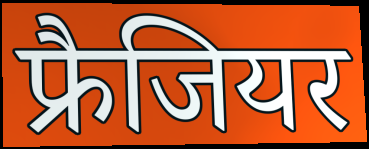
फ्रैजियर